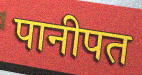
पानीपत